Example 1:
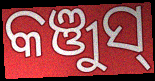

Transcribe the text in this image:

କଞ୍ଜୁସ୍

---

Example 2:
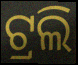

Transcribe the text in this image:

ଟ୍ରଲି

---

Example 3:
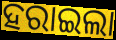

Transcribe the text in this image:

ହରାଇଲା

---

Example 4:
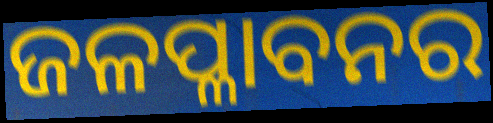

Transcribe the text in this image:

ଜଳପ୍ଳାବନର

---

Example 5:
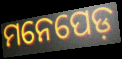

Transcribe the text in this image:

ମନେପେଡ଼